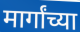
मार्गांच्या